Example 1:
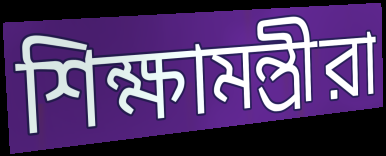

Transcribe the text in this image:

শিক্ষামন্ত্রীরা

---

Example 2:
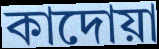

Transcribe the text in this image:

কাদোয়া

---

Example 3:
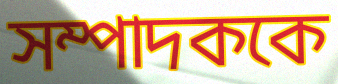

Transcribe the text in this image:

সম্পাদককে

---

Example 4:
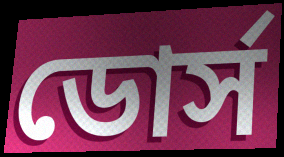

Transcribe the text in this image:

ডোর্স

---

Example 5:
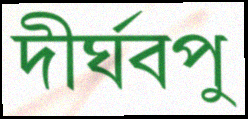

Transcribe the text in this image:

দীর্ঘবপু